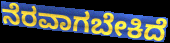
ನೆರವಾಗಬೇಕಿದೆ